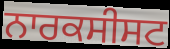
ਨਾਰਕਸੀਸਟ